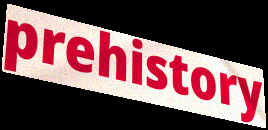
prehistory